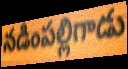
నడింపల్లిగాడు